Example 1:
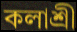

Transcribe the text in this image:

কলাশ্রী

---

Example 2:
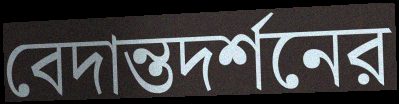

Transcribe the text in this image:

বেদান্তদর্শনের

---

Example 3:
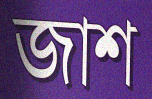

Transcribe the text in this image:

জাশ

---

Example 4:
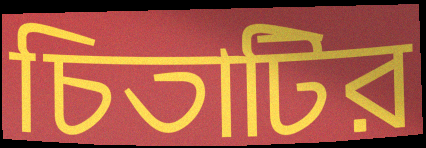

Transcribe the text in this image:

চিতাটির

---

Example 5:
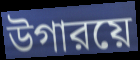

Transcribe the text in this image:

উগারয়ে